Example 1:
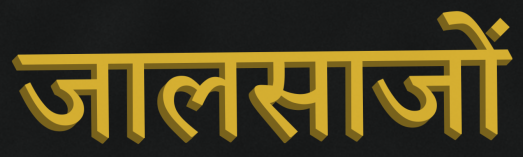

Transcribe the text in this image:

जालसाजों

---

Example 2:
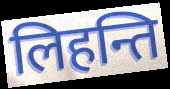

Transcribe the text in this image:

लिहन्ति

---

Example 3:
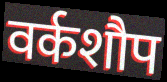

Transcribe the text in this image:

वर्कशौप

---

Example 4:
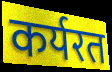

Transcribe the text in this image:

कर्यरत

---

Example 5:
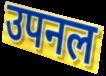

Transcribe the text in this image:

उपनल